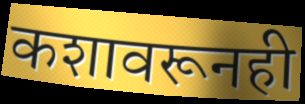
कशावरूनही